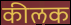
कीलक